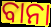
ବାନା